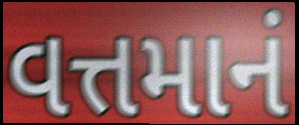
વત્તમાનં